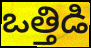
ఒత్తిడి